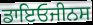
ਡਾਇਓਜੀਨਸ